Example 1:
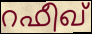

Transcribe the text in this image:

റഫീഖ്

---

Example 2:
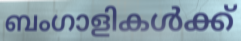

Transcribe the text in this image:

ബംഗാളികൾക്ക്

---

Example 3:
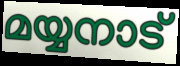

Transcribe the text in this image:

മയ്യനാട്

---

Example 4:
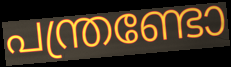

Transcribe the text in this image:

പന്ത്രണ്ടോ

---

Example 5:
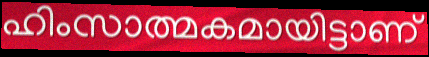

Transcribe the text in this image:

ഹിംസാത്മകമായിട്ടാണ്